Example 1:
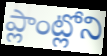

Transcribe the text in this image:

ప్లాంట్లోని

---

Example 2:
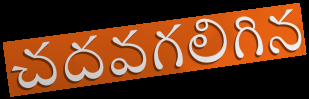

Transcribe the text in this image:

చదవగలిగిన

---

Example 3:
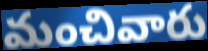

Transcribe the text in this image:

మంచివారు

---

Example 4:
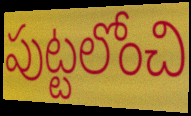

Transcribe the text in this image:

పుట్టలోంచి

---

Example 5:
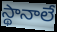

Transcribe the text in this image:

స్థానాలే